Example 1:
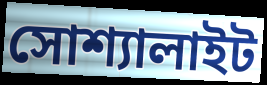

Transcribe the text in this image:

সোশ্যালাইট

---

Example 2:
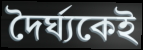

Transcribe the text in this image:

দৈর্ঘ্যকেই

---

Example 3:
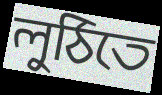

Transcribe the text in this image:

লুঠিতে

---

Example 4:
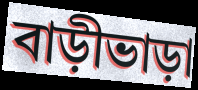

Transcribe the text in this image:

বাড়ীভাড়া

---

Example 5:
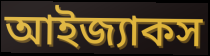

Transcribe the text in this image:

আইজ্যাকস